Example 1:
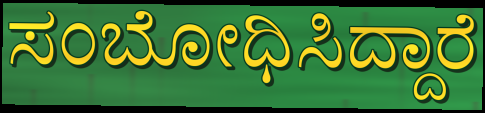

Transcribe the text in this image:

ಸಂಬೋಧಿಸಿದ್ದಾರೆ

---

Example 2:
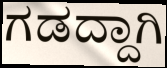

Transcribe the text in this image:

ಗಡದ್ದಾಗಿ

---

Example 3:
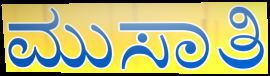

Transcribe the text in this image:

ಮುಸಾತಿ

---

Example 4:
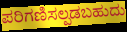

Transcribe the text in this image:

ಪರಿಗಣಿಸಲ್ಪಡಬಹುದು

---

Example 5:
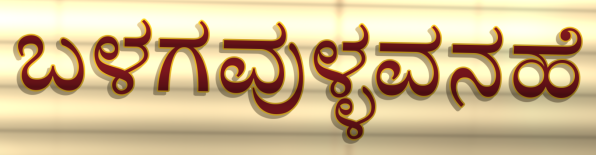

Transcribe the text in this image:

ಬಳಗವುಳ್ಳವನಹೆ